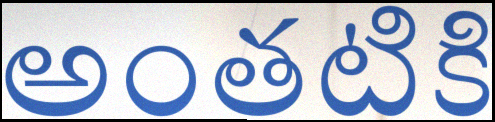
అంతటికి